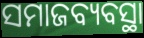
ସମାଜବ୍ୟବସ୍ଥା